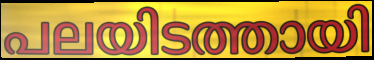
പലയിടത്തായി